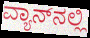
ವ್ಯಾನ್‌ನಲ್ಲಿ